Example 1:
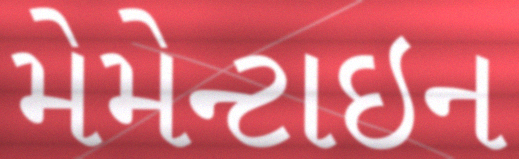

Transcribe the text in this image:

મેમેન્ટાઇન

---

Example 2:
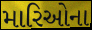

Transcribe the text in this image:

મારિઓના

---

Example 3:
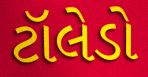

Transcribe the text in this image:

ટૉલેડો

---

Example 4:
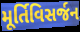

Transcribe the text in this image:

મૂર્તિવિસર્જન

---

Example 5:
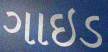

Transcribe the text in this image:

ગાઇડ